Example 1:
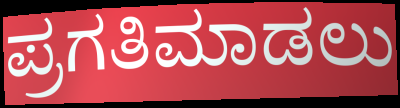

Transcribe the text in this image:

ಪ್ರಗತಿಮಾಡಲು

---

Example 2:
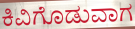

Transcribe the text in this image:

ಕಿವಿಗೊಡುವಾಗ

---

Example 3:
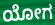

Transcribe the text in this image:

ಯೋಗ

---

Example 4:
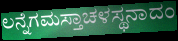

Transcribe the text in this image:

ಲನ್ನೆಗಮಸ್ತಾಚಳಸ್ಥನಾದಂ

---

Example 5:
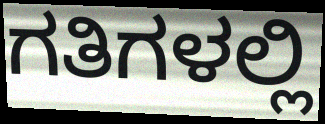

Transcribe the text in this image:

ಗತಿಗಳಲ್ಲಿ